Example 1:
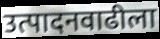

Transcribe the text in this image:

उत्पादनवाढीला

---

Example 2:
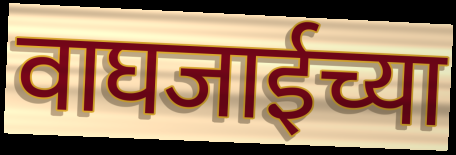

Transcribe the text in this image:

वाघजाईच्या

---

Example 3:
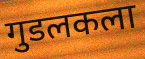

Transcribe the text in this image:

गुडलकला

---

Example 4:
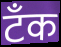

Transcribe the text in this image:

टॅंक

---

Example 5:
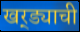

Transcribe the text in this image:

खर्ड्याची